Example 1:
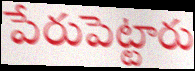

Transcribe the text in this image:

పేరుపెట్టారు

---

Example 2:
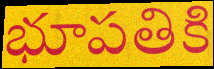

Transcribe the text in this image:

భూపతికి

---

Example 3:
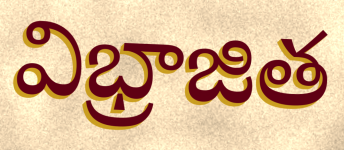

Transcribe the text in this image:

విభ్రాజిత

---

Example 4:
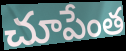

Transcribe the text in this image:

చూపేంత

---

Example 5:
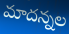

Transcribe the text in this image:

మాదన్నల